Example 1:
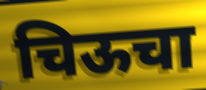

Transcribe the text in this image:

चिऊचा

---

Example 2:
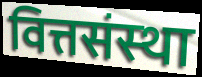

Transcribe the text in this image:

वित्तसंस्था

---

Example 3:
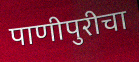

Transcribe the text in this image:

पाणीपुरीचा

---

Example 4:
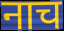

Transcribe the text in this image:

नाच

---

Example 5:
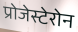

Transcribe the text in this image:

प्रोजेस्टेरोन